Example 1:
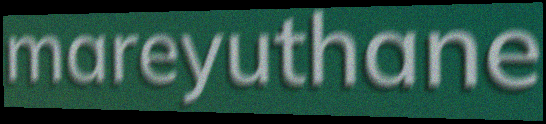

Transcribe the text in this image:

mareyuthane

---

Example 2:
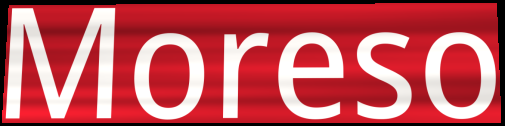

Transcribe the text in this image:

Moreso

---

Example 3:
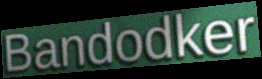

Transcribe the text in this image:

Bandodker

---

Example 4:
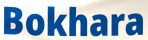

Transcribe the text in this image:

Bokhara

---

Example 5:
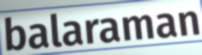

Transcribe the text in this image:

balaraman